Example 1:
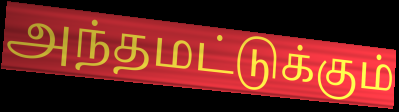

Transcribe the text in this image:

அந்தமட்டுக்கும்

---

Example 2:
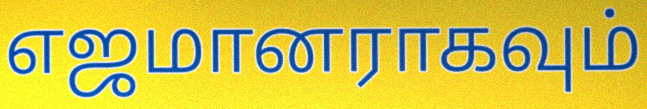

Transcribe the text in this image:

எஜமானராகவும்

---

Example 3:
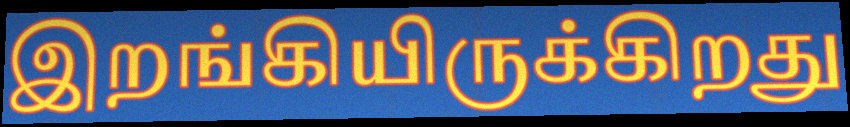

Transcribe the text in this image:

இறங்கியிருக்கிறது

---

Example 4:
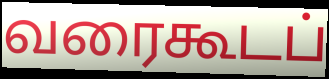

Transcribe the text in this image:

வரைகூடப்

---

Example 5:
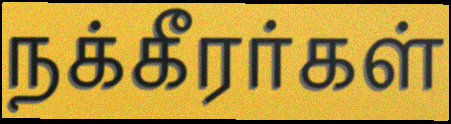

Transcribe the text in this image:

நக்கீரர்கள்